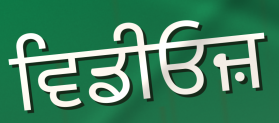
ਵਿਡੀਓਜ਼